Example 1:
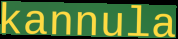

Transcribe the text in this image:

kannula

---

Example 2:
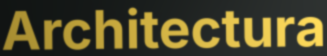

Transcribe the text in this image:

Architectura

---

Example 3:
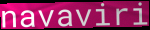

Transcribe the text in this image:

navaviri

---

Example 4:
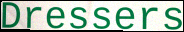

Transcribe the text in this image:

Dressers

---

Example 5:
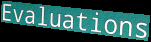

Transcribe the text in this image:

Evaluations